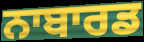
ਨਾਬਾਰਡ